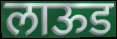
लाऊड